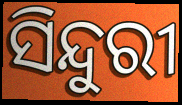
ସିନ୍ଦୁରୀ